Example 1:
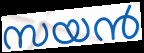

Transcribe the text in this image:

സയൻ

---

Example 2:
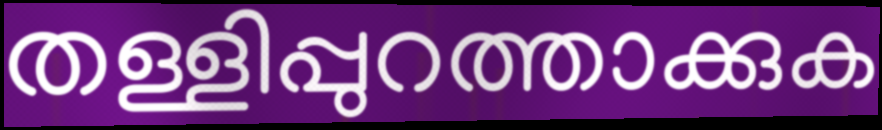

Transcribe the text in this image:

തള്ളിപ്പുറത്താക്കുക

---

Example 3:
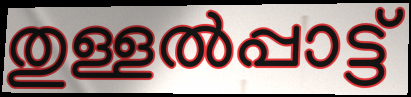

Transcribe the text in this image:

തുള്ളൽപ്പാട്ട്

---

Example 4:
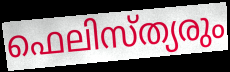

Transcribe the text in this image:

ഫെലിസ്ത്യരും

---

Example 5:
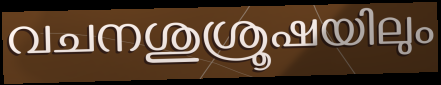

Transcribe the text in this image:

വചനശുശ്രൂഷയിലും